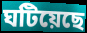
ঘটিয়েছে